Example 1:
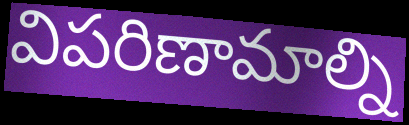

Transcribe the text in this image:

విపరిణామాల్ని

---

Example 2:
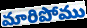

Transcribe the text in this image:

మారిపోము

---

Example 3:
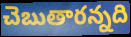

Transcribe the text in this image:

చెబుతారన్నది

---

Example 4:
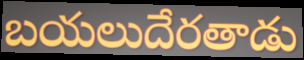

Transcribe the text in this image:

బయలుదేరతాడు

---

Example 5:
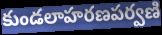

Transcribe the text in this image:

కుండలాహరణపర్వణి